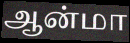
ஆன்மா